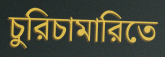
চুরিচামারিতে